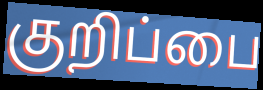
குறிப்பை